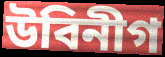
উবিনীগ